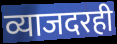
व्याजदरही